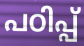
പഠിപ്പ്